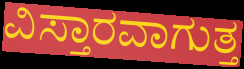
ವಿಸ್ತಾರವಾಗುತ್ತ